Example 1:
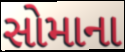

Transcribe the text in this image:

સોમાના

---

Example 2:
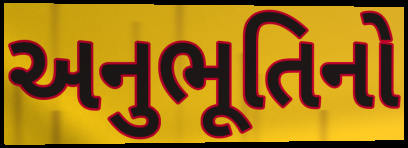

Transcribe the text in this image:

અનુભૂતિનો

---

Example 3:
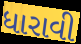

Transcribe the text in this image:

ધારાવી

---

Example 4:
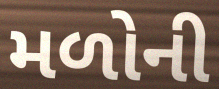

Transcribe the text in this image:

મળોની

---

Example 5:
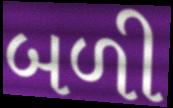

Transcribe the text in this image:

બળી